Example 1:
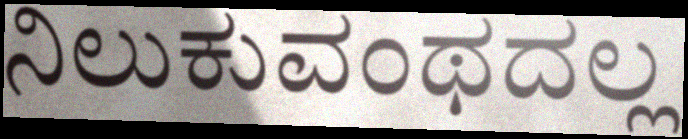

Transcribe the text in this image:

ನಿಲುಕುವಂಥದಲ್ಲ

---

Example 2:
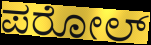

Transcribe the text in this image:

ಪರೋಲ್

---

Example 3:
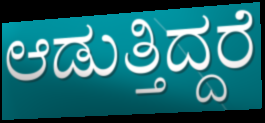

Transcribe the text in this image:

ಆಡುತ್ತಿದ್ದರೆ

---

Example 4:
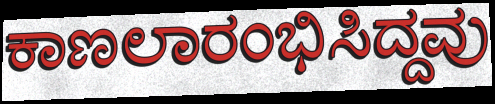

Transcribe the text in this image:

ಕಾಣಲಾರಂಭಿಸಿದ್ದವು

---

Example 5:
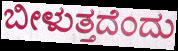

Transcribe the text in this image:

ಬೀಳುತ್ತದೆಂದು